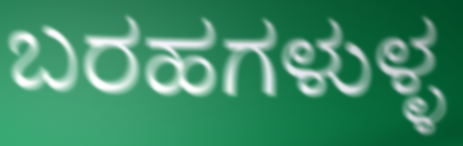
ಬರಹಗಳುಳ್ಳ